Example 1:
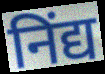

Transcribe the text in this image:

निंद्य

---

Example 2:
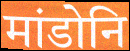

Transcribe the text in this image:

मांडोनि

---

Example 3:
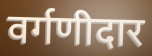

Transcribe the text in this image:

वर्गणीदार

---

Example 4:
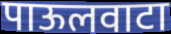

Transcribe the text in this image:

पाऊलवाटा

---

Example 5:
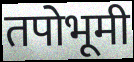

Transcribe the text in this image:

तपोभूमी